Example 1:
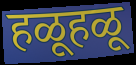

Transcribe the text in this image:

हळूहळू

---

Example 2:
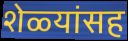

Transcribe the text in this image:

शेळ्यांसह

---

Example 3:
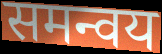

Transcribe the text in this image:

समन्वय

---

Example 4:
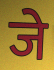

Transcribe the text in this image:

जे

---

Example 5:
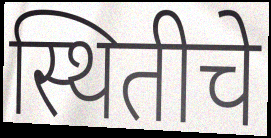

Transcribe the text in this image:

स्थितीचे